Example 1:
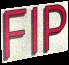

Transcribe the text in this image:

FIP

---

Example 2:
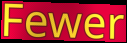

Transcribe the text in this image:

Fewer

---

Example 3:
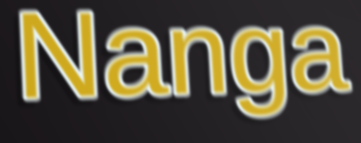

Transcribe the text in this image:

Nanga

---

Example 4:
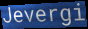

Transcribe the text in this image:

Jevergi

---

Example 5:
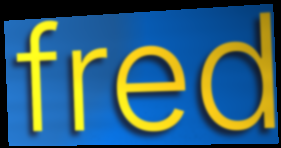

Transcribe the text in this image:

fred